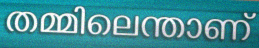
തമ്മിലെന്താണ്